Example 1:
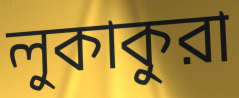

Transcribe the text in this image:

লুকাকুরা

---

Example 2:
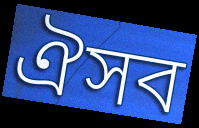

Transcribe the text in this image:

ঐসব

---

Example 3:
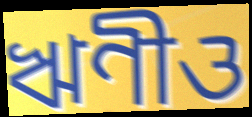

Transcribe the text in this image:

ঋণীও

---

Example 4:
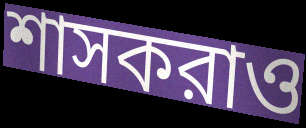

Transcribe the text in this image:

শাসকরাও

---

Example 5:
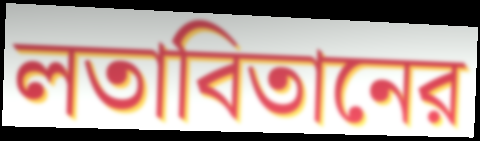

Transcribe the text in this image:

লতাবিতানের